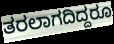
ತರಲಾಗದಿದ್ದರೂ